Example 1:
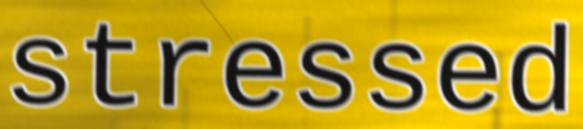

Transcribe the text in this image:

stressed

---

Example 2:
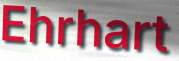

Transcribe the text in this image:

Ehrhart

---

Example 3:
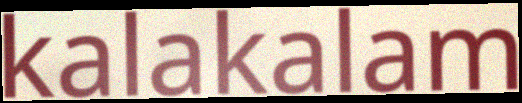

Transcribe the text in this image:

kalakalam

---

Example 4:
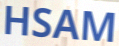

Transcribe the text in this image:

HSAM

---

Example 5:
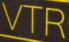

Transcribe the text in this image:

VTR